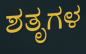
ಶತೃಗಳ